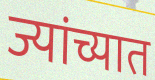
ज्यांच्यात